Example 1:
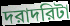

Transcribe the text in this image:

দরাদরিটা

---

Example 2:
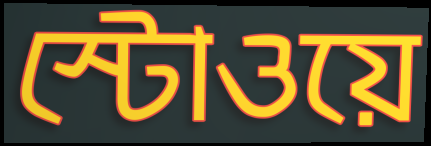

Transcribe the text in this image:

স্টোওয়ে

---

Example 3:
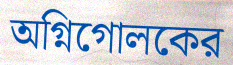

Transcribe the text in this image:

অগ্নিগোলকের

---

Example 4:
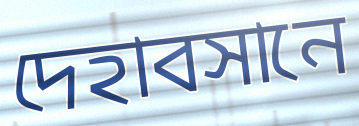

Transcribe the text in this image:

দেহাবসানে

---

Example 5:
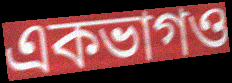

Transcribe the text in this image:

একভাগও